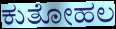
ಕುತೋಹಲ